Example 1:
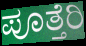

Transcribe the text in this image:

ಪೂತ್ತೆರಿ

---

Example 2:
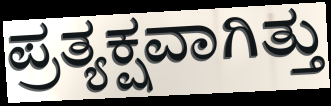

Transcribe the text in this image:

ಪ್ರತ್ಯಕ್ಷವಾಗಿತ್ತು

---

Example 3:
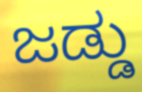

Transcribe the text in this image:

ಜಡ್ಡು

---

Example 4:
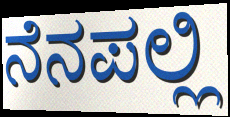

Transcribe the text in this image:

ನೆನಪಲ್ಲಿ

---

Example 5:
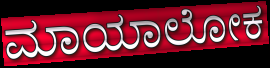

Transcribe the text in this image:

ಮಾಯಾಲೋಕ